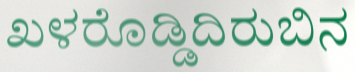
ಖಳರೊಡ್ಡಿದಿರುಬಿನ